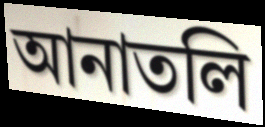
আনাতলি